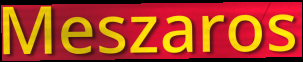
Meszaros